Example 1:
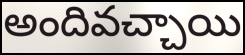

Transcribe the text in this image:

అందివచ్చాయి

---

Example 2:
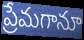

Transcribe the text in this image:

ప్రేమగానూ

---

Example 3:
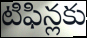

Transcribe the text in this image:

టిఫిన్లకు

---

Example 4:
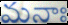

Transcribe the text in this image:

మనాః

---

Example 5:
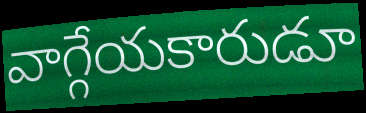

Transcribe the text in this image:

వాగ్గేయకారుడూ